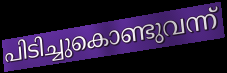
പിടിച്ചുകൊണ്ടുവന്ന്